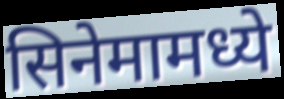
सिनेमामध्ये